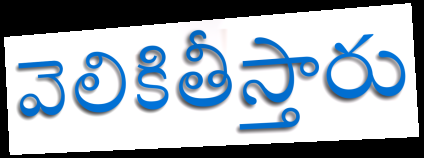
వెలికితీస్తారు